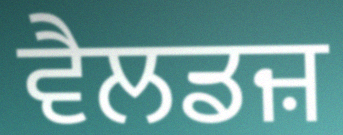
ਵੈਲਡਜ਼